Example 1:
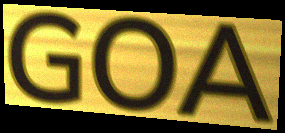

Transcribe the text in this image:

GOA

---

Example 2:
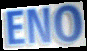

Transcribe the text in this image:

ENO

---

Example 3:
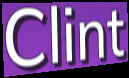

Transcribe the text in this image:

Clint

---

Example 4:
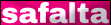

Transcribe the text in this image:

safalta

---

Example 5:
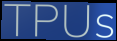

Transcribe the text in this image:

TPUs